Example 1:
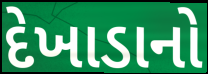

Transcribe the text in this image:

દેખાડાનો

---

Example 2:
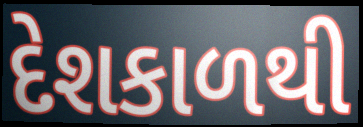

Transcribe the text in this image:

દેશકાળથી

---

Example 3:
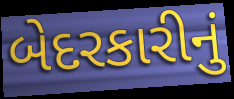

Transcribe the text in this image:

બેદરકારીનું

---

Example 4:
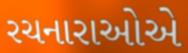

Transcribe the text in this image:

રચનારાઓએ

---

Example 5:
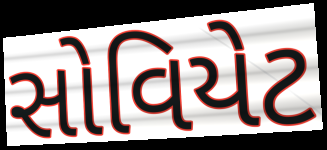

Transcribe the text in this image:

સોવિયેટ